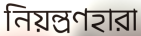
নিয়ন্ত্রণহারা